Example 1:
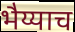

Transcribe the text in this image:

भैय्याच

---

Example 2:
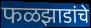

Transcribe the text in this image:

फळझाडांचे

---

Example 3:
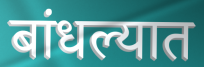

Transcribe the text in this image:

बांधल्यात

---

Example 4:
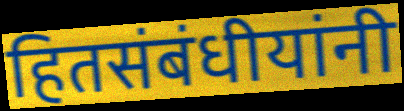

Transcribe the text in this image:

हितसंबंधीयांनी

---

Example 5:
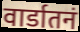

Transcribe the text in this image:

वार्डातनं